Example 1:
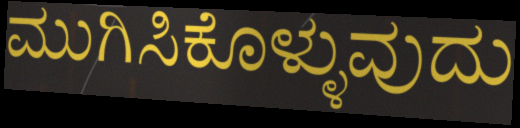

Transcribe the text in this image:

ಮುಗಿಸಿಕೊಳ್ಳುವುದು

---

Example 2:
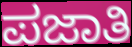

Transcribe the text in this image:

ಪಜಾತಿ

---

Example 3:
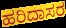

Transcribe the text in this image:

ಹರಿದಾಸರ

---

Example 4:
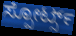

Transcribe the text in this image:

ಸ್ಪೋರ್ಟ್ಸ್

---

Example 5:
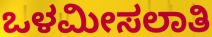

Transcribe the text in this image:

ಒಳಮೀಸಲಾತಿ